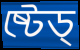
ষ্টেড্